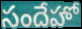
సందేహో